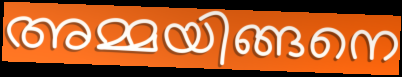
അമ്മയിങ്ങനെ